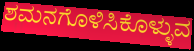
ಶಮನಗೊಳಿಸಿಕೊಳ್ಳುವ